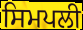
ਸਿਮਪਲੀ